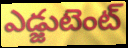
ఎడ్జుటెంట్